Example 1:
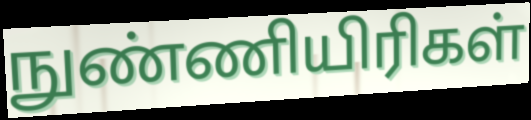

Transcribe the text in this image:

நுண்ணியிரிகள்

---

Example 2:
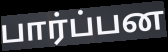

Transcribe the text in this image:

பார்ப்பன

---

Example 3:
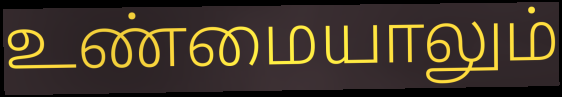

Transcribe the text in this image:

உண்மையாலும்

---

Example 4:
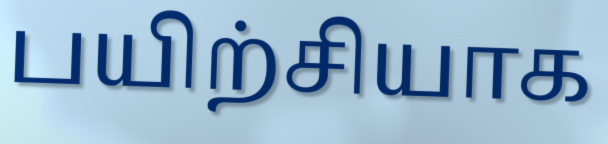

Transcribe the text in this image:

பயிற்சியாக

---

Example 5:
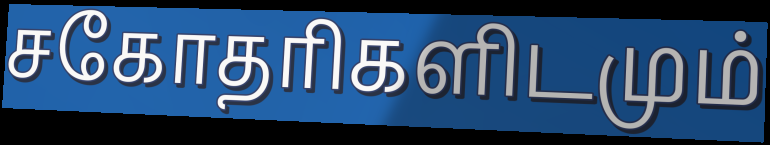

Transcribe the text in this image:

சகோதரிகளிடமும்